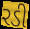
રડી